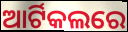
ଆର୍ଟିକଲରେ